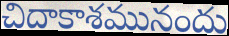
చిదాకాశమునందు